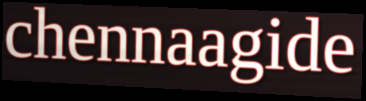
chennaagide